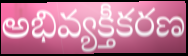
అభివ్యక్తీకరణ